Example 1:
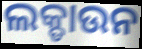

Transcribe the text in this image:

ଲକ୍ଡାଉନ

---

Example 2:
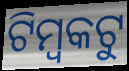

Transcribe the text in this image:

ଟିମ୍ବକଟୁ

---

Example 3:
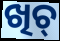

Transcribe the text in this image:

ଖିଚ୍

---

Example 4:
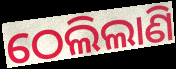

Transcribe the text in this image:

ଠେଲିଲାଣି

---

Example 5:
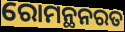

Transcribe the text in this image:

ରୋମନ୍ଥନରତ